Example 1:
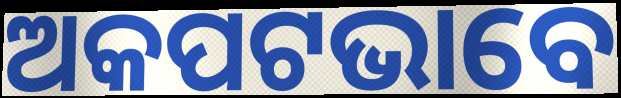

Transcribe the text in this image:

ଅକପଟଭାବେ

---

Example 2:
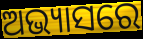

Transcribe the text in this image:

ଅଭ୍ୟାସରେ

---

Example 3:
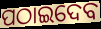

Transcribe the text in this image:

ପଠାଇଦେବ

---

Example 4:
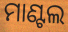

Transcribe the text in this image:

ମାଣ୍ଟଲ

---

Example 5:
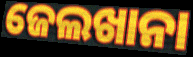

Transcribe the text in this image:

ଜେଲଖାନା